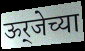
ऊर्जेच्या